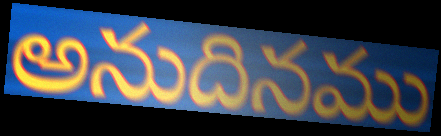
అనుదినము